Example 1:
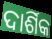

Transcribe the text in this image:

ଦାର୍ଶିକ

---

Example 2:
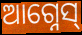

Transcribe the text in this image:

ଆଗ୍ନେସ୍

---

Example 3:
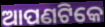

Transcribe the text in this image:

ଆପଣଟିକେ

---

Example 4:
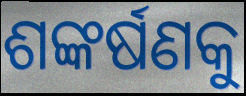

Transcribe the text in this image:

ଶଙ୍କର୍ଷଣକୁ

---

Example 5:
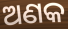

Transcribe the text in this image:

ଅଣକ